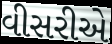
વીસરીએ